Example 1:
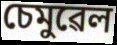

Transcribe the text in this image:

চেমুৱেল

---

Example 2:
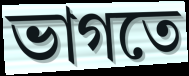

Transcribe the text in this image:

ভাগতে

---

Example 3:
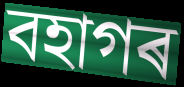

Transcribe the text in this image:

বহাগৰ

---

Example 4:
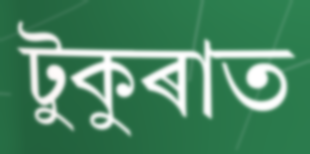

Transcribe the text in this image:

টুকুৰাত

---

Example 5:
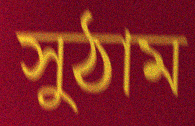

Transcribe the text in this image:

সুঠাম